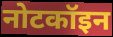
नोटकॉइन